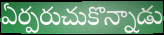
ఏర్పరుచుకొన్నాడు